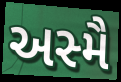
અસ્મૈ